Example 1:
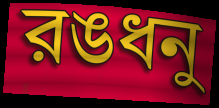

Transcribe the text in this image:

রঙধনু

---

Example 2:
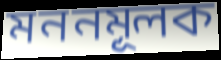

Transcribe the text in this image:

মননমূলক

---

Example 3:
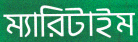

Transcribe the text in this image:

ম্যারিটাইম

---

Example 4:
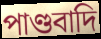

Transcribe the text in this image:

পাণ্ডবাদি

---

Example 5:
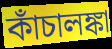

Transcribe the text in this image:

কাঁচালঙ্কা